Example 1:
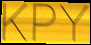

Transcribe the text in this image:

KPY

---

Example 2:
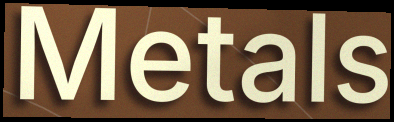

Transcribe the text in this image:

Metals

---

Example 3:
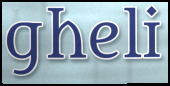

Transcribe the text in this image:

gheli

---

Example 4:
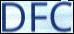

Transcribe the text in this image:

DFC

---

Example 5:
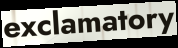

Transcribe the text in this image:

exclamatory